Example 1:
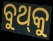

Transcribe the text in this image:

ବୁଥ୍‌କୁ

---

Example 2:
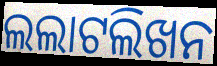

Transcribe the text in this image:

ଲଲାଟଲିଖନ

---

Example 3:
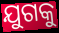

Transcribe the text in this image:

ଯୁଗକୁ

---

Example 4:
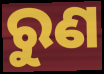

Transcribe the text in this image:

ରୁଣ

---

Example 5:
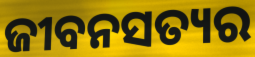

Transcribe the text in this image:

ଜୀବନସତ୍ୟର